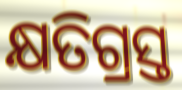
କ୍ଷତିଗ୍ରସ୍ତ